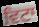
ਵਿਟਾ